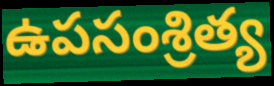
ఉపసంశ్రిత్య